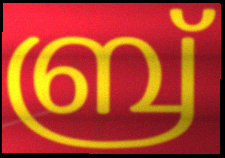
ബ്ര്